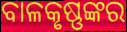
ବାଳକୃଷ୍ଣଙ୍କର